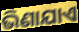
ଭିଣାଯାଏ